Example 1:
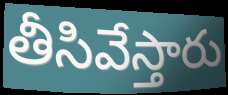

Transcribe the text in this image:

తీసివేస్తారు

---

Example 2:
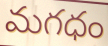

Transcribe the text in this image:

మగధం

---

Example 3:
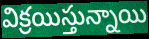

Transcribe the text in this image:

విక్రయిస్తున్నాయి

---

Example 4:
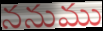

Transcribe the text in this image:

ననుము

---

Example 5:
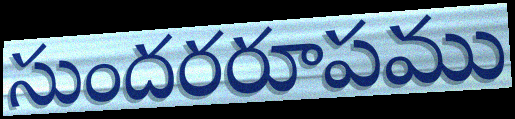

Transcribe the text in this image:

సుందరరూపము